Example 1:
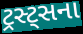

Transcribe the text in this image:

ટ્રસ્ટ્સના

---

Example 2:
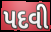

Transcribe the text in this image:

પદવી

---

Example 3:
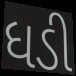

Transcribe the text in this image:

ધડી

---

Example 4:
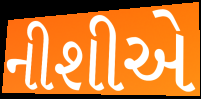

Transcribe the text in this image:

નીશીએ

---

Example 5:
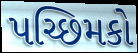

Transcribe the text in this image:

પચ્છિમકો